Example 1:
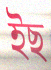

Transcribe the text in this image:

ইছ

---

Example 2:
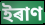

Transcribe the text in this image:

ইৰাণ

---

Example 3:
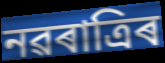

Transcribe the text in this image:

নৱৰাত্ৰিৰ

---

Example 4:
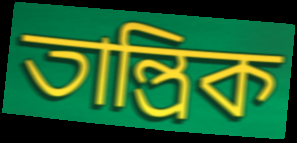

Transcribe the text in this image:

তান্ত্ৰিক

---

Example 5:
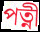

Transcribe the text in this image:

পত্নী